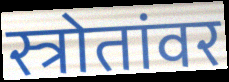
स्त्रोतांवर